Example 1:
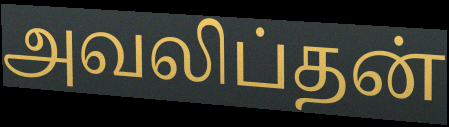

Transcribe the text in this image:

அவலிப்தன்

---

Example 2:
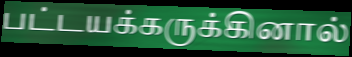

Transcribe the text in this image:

பட்டயக்கருக்கினால்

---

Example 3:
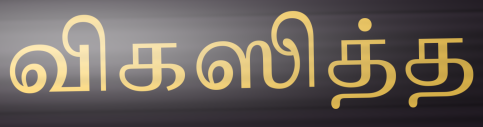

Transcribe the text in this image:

விகஸித்த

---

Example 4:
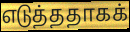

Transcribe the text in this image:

எடுத்ததாகக்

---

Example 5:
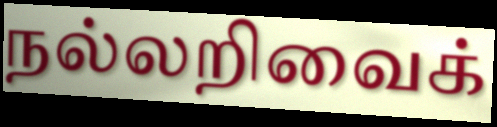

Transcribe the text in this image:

நல்லறிவைக்